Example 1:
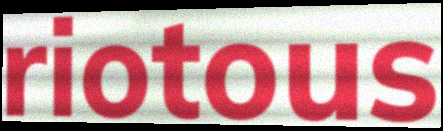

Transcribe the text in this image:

riotous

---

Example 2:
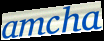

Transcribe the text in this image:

amcha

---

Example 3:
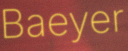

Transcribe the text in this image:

Baeyer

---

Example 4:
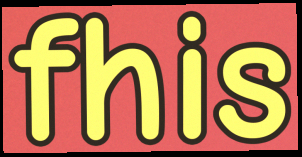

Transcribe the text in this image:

fhis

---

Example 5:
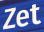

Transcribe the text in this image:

Zet